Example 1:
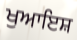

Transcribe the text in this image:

ਖੁਆਇਸ਼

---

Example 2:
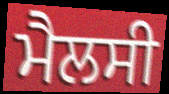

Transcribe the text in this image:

ਮੈਲਸੀ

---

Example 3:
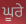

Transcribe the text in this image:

ਘੂਰੇ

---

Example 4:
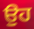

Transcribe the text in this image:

ਉੁਹ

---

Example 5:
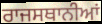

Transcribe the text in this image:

ਰਾਜਸਥਾਨੀਆਂ